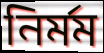
নির্মম